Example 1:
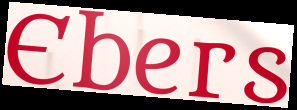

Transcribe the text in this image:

Ebers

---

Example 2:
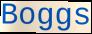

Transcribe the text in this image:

Boggs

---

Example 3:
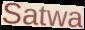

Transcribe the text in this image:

Satwa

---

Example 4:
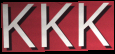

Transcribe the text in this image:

KKK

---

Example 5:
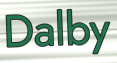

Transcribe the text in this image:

Dalby